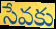
సేవకు